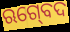
ଋଗ୍‍ବେଦ